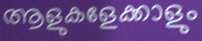
ആളുകളേക്കാളും